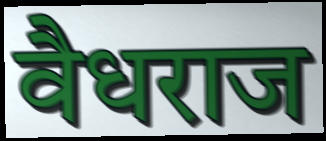
वैधराज